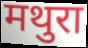
मथुरा